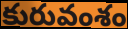
కురువంశం